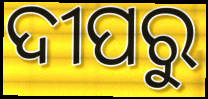
ଦୀପରୁ